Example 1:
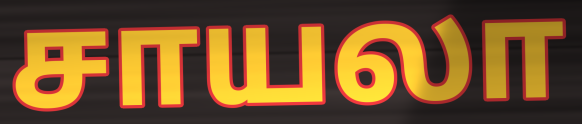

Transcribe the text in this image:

சாயலா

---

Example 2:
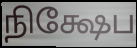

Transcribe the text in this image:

நிக்ஷேப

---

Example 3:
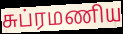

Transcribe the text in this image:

சுப்ரமணிய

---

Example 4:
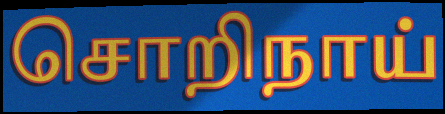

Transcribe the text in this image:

சொறிநாய்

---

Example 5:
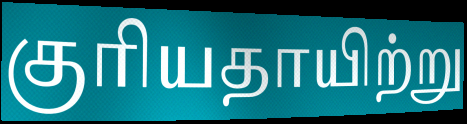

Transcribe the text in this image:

குரியதாயிற்று